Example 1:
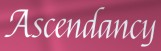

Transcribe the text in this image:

Ascendancy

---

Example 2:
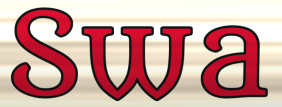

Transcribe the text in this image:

Swa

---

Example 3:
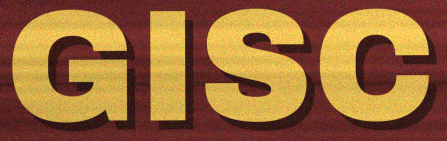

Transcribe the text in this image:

GISC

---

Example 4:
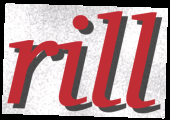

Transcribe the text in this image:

rill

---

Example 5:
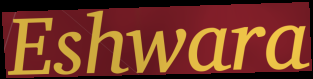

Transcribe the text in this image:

Eshwara